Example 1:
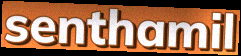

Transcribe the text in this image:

senthamil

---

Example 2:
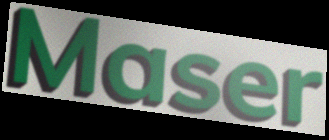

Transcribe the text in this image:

Maser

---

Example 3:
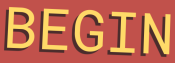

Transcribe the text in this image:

BEGIN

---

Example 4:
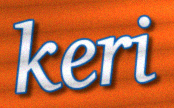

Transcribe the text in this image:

keri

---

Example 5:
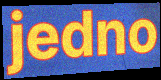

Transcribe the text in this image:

jedno